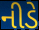
નીડે